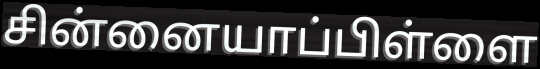
சின்னையாப்பிள்ளை